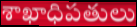
శాఖాధిపతులు